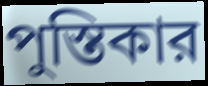
পুস্তিকার